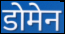
डोमेन